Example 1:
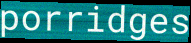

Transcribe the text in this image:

porridges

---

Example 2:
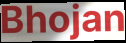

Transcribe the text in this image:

Bhojan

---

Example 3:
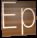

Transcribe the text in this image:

Ep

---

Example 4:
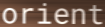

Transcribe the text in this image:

orient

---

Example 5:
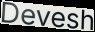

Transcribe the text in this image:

Devesh